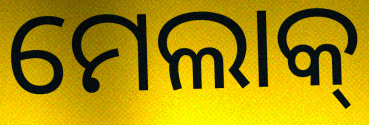
ମେଲାକ୍